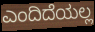
ಎಂದಿದೆಯಲ್ಲ